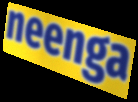
neenga